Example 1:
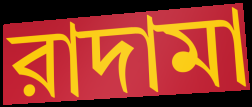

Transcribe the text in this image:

রাদামা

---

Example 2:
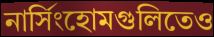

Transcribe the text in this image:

নার্সিংহোমগুলিতেও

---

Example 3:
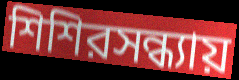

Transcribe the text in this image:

শিশিরসন্ধ্যায়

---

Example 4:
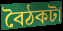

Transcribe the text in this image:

বৈঠকটা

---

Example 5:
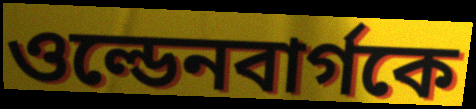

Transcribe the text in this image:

ওল্ডেনবার্গকে